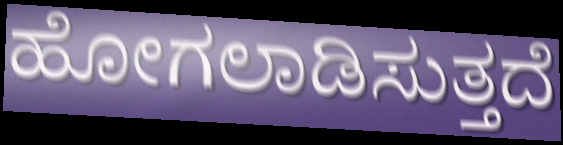
ಹೋಗಲಾಡಿಸುತ್ತದೆ